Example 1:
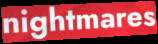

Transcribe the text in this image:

nightmares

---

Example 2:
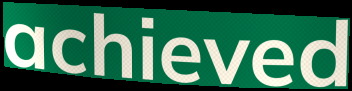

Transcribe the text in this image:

achieved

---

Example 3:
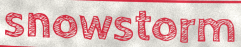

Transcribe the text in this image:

snowstorm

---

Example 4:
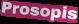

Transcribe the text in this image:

Prosopis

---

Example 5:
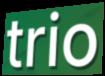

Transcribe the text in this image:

trio